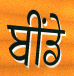
ਬੀਂਡੇ